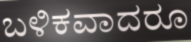
ಬಳಿಕವಾದರೂ